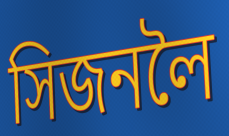
সিজনলৈ